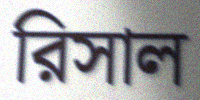
রিসাল